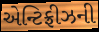
એન્ટિફ્રીઝની